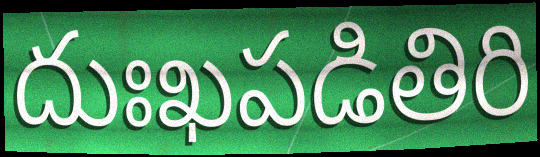
దుఃఖపడితిరి